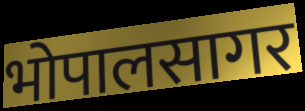
भोपालसागर